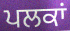
ਪਲਕਾਂ